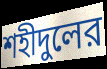
শহীদুলের